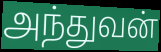
அந்துவன்